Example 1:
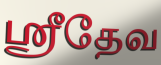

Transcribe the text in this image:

ஸ்ரீதேவ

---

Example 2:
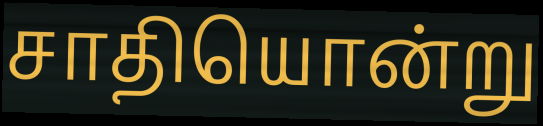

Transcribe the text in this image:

சாதியொன்று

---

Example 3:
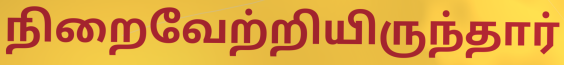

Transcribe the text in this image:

நிறைவேற்றியிருந்தார்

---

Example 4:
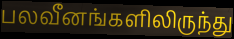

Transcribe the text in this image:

பலவீனங்களிலிருந்து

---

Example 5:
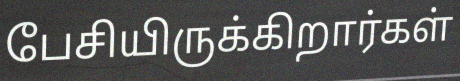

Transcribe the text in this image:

பேசியிருக்கிறார்கள்